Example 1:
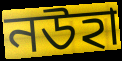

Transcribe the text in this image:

নউহা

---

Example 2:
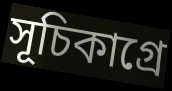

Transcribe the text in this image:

সূচিকাগ্রে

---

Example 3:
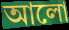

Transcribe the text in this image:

আলো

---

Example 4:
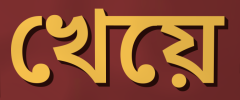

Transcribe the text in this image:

খেয়ে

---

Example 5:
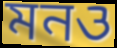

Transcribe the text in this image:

মনও